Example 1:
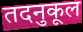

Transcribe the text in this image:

तदनुकूल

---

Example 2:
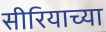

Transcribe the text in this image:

सीरियाच्या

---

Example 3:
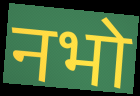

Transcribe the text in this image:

नभो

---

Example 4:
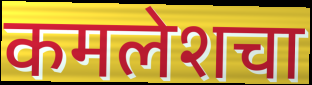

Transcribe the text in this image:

कमलेशचा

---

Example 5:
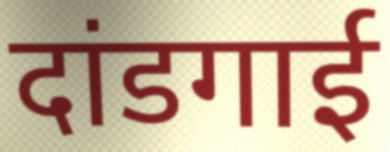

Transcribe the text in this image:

दांडगाई